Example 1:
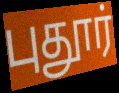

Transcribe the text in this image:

புதூர்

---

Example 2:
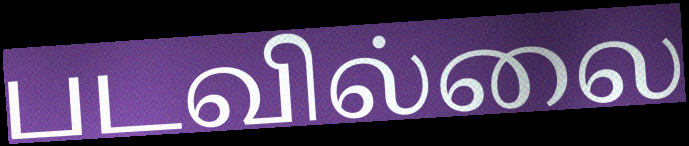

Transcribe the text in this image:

படவில்லை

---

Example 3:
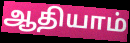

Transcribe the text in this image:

ஆதியாம்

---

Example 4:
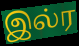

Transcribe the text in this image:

இல்ர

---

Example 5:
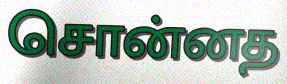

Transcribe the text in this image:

சொன்னத